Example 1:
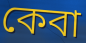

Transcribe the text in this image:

কেবা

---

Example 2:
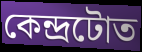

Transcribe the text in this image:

কেন্দ্ৰটোত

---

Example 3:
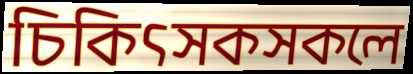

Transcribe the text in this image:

চিকিৎসকসকলে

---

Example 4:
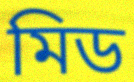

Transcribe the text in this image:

মিড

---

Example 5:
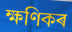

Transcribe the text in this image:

ক্ষণিকৰ